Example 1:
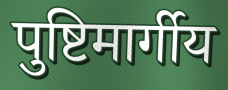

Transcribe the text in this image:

पुष्टिमार्गीय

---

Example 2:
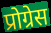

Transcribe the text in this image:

प्रोग्रेस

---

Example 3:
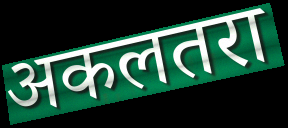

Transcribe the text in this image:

अकलतरा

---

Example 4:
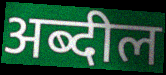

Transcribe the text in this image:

अब्दील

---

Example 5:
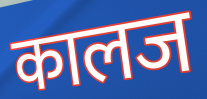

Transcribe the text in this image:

कालज